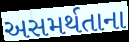
અસમર્થતાના